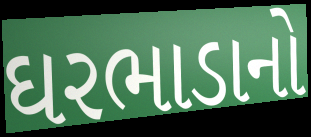
ઘરભાડાનો